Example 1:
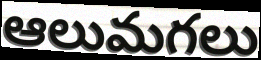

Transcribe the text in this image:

ఆలుమగలు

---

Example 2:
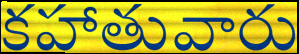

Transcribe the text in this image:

కహాతువారు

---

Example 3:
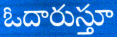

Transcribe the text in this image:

ఓదారుస్తూ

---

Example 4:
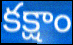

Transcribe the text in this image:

కక్షాం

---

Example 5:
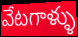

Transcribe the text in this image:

వేటగాళ్ళు